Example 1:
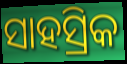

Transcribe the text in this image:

ସାହସ୍ରିକ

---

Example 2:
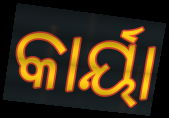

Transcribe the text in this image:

କାର୍ୟା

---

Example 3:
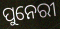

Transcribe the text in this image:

ପୁନେରୀ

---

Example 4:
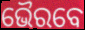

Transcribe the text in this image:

ଭୈରବେ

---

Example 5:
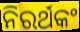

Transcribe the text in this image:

ନିରର୍ଥକଂ